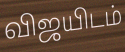
விஜயிடம்